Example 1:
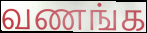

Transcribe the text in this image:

வணங்க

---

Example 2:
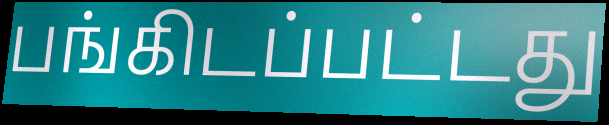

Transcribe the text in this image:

பங்கிடப்பட்டது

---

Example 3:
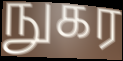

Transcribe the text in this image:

நுகர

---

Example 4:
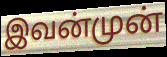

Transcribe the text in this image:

இவன்முன்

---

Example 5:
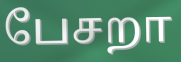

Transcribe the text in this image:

பேசறா